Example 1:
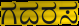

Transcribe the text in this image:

ಗದರಸ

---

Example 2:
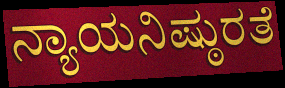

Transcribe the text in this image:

ನ್ಯಾಯನಿಷ್ಠುರತೆ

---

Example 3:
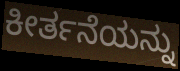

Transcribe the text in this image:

ಕೀರ್ತನೆಯನ್ನು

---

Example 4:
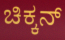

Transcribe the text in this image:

ಚಿಕ್ಕನ್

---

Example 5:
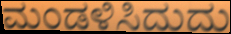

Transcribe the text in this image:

ಮಂಡಳಿಸಿದುದು